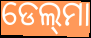
ଡେଲ୍‍ମା